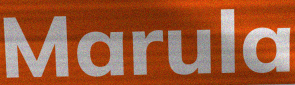
Marula